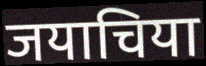
जयाचिया